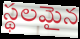
స్థలమైన